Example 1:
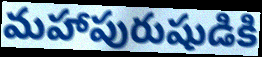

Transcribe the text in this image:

మహాపురుషుడికి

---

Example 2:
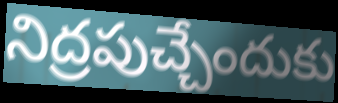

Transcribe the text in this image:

నిద్రపుచ్చేందుకు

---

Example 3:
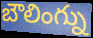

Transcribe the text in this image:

బౌలింగ్ను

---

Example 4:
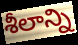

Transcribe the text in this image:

శీలాన్ని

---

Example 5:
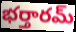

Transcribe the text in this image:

భర్తారమ్